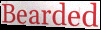
Bearded